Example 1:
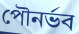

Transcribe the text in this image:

পৌনর্ভব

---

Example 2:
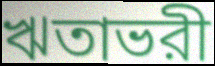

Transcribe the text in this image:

ঋতাভরী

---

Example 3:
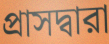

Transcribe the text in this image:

প্রাসদ্বারা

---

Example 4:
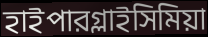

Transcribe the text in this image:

হাইপারগ্লাইসিমিয়া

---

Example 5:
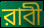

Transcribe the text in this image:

রাবী